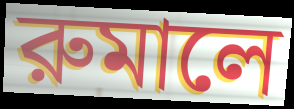
রুমালে